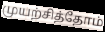
முயற்சித்தோம்